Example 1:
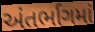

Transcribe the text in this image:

અંતર્ભાગમાં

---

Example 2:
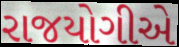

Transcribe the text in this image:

રાજયોગીએ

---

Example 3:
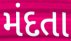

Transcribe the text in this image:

મંદતા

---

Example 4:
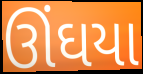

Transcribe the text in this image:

ઊંઘયા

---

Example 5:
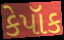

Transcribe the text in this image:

કેપૉક